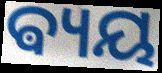
ଵ୍ୟୟ